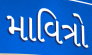
માવિત્રો